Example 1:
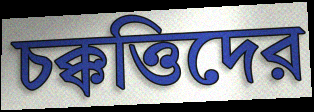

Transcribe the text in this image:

চক্কত্তিদের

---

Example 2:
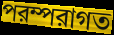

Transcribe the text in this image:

পরম্পরাগত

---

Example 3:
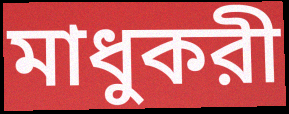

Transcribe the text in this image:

মাধুকরী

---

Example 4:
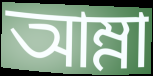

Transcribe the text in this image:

আম্না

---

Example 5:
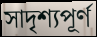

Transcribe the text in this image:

সাদৃশ্যপূর্ণ